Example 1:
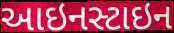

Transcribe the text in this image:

આઇનસ્ટાઇન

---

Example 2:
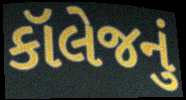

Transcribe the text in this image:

કૉલેજનું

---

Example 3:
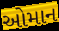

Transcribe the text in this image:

ઓમાન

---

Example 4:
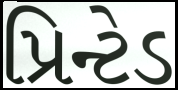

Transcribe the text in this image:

પ્રિન્ટેડ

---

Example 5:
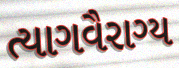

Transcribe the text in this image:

ત્યાગવૈરાગ્ય